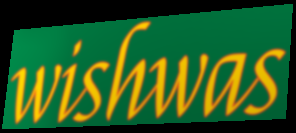
wishwas